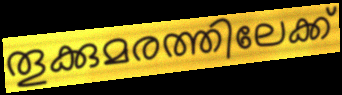
തൂക്കുമരത്തിലേക്ക്